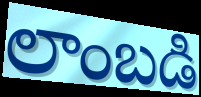
లాంబడి